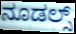
ನೂಡಲ್ಸ್